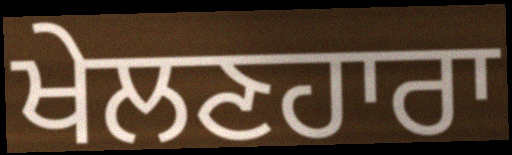
ਖੇਲਣਹਾਰਾ